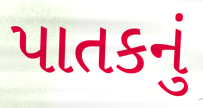
પાતકનું